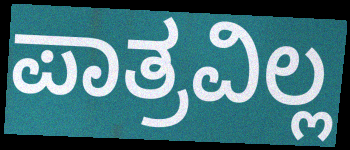
ಪಾತ್ರವಿಲ್ಲ